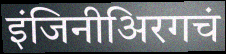
इंजिनीअिरगचं